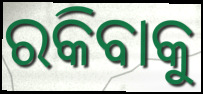
ରକିବାକୁ